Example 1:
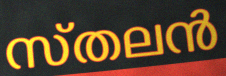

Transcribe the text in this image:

സ്‌തലൻ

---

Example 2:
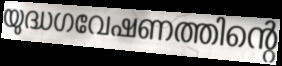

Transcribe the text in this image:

യുദ്ധഗവേഷണത്തിന്റെ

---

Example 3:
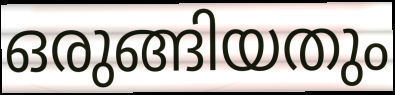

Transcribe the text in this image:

ഒരുങ്ങിയതും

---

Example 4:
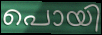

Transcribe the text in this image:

പൊയി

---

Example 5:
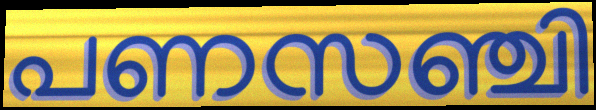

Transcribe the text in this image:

പണസഞ്ചി